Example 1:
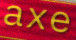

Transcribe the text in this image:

axe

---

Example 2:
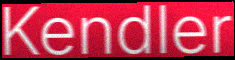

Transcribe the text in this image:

Kendler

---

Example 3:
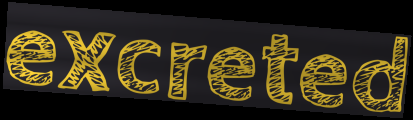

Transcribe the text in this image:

excreted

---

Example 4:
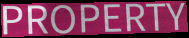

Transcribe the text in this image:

PROPERTY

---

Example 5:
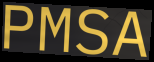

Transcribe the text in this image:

PMSA